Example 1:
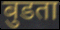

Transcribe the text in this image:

बुडता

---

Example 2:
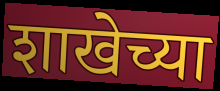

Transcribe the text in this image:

शाखेच्या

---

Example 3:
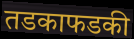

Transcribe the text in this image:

तडकाफडकी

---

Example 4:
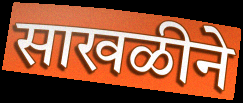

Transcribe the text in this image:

साखळीने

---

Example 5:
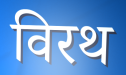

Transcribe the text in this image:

विरथ